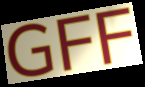
GFF